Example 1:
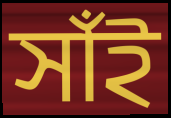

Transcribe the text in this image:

সাঁই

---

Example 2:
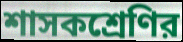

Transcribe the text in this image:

শাসকশ্রেণির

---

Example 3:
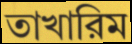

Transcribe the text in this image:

তাখারিম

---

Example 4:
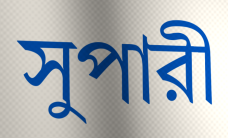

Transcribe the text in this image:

সুপারী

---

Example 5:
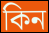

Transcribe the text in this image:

কিন